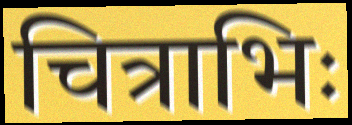
चित्राभिः